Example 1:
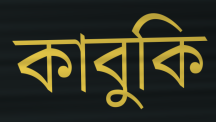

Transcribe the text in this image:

কাবুকি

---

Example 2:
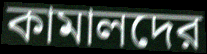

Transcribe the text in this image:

কামালদের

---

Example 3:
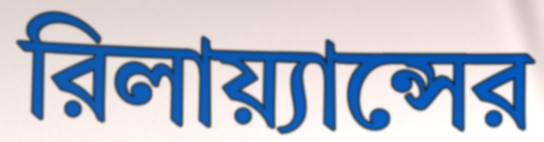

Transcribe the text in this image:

রিলায়্যান্সের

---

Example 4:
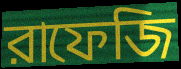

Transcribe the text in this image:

রাফেজি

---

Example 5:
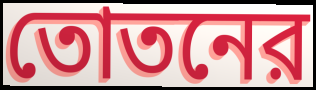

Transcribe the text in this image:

তোতনের